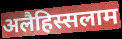
अलैहिस्सलाम